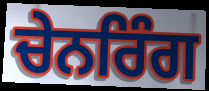
ਚੇਨਰਿੰਗ